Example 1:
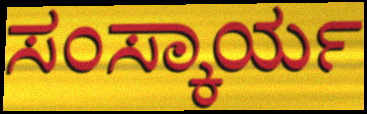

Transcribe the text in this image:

ಸಂಸ್ಕಾರ್ಯ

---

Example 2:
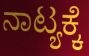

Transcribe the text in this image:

ನಾಟ್ಯಕ್ಕೆ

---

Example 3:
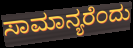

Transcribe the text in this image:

ಸಾಮಾನ್ಯರೆಂದು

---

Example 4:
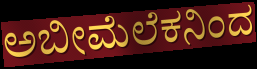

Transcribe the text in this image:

ಅಬೀಮೆಲೆಕನಿಂದ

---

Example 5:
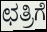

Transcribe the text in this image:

ಛತ್ರಿಗೆ